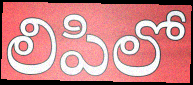
లిపిలో